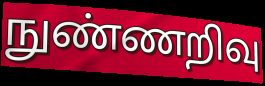
நுண்ணறிவு